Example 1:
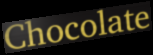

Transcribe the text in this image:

Chocolate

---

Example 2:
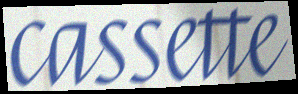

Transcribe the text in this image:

cassette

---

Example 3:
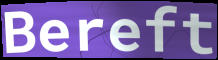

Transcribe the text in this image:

Bereft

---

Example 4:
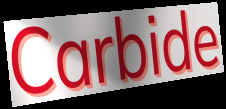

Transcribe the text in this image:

Carbide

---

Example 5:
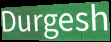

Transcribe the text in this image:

Durgesh